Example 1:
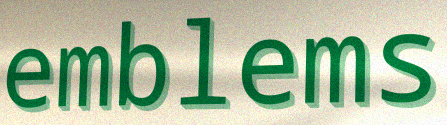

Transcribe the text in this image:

emblems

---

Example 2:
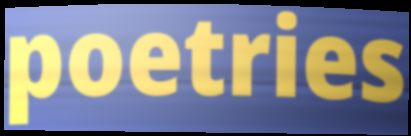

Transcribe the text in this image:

poetries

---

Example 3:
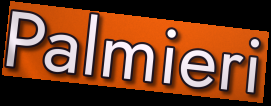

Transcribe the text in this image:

Palmieri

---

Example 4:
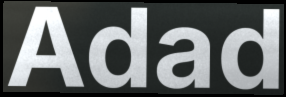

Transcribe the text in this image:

Adad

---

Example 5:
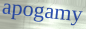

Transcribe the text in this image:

apogamy